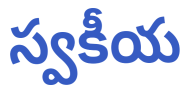
స్వకీయ